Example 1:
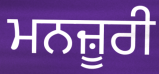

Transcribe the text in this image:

ਮਨਜ਼ੂਰੀ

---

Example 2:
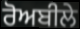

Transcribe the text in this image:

ਰੋਅਬੀਲੇ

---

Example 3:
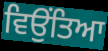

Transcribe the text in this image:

ਵਿਉਂਤਿਆ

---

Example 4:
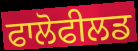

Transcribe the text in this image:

ਫਾਲੋਫੀਲਡ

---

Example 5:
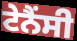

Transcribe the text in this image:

ਟੇਨੈਂਸੀ